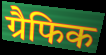
ग्रैफिक